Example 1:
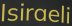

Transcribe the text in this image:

Isiraeli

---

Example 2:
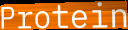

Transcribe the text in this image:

Protein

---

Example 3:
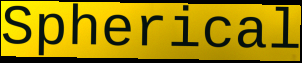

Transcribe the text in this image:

Spherical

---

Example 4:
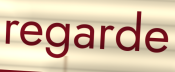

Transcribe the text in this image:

regarde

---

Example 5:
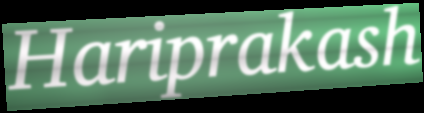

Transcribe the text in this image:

Hariprakash